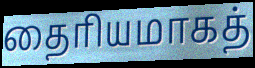
தைரியமாகத்